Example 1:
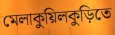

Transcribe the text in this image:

মেলাকুয়িলকুড়িতে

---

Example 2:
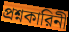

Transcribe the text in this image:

প্রশ্নকারিনী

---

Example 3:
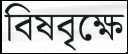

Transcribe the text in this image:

বিষবৃক্ষে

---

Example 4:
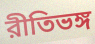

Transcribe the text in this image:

রীতিভঙ্গ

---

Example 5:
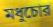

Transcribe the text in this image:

মধুচোর